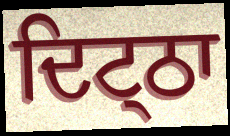
ਦਿਟ੍ਠਾ